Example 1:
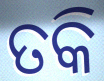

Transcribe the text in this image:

ତକି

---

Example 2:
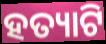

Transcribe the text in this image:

ହତ୍ୟାଟି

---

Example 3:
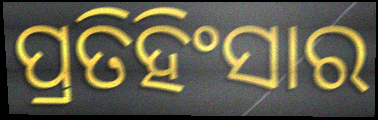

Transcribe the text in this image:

ପ୍ରତିହିଂସାର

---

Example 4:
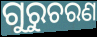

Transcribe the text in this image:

ଗୁରୁଚରଣ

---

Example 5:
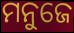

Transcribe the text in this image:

ମନୁଜେ